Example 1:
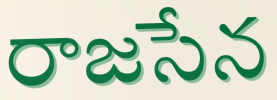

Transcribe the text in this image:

రాజసేన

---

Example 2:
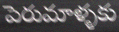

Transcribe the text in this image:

పెరుమాళ్ళకు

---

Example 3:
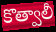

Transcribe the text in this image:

కొత్వాలీ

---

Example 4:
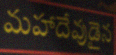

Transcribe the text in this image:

మహాదేవుడైన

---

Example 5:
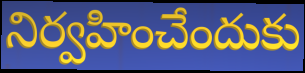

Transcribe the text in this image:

నిర్వహించేందుకు